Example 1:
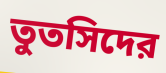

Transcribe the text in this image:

তুতসিদের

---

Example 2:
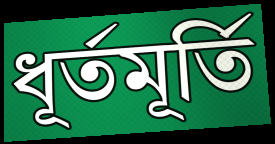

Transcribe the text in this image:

ধূর্তমূর্তি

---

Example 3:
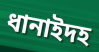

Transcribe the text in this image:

ধানাইদহ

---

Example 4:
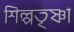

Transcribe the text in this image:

শিল্পতৃষ্ণা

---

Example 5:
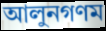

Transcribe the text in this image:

আলুনগণম